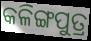
କଳିଙ୍ଗପୁତ୍ର